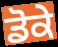
ਡੋਕੇ